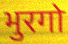
भुरगो